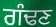
ਗੰਢਣ